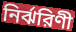
নির্ঝরিণী